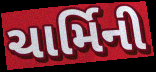
ચાર્મિની